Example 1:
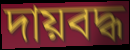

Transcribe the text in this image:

দায়বদ্ধ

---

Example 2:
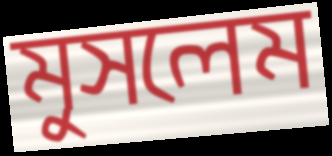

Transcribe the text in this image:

মুসলেম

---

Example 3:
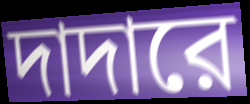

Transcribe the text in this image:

দাদারে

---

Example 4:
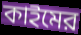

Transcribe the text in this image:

কাইমের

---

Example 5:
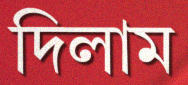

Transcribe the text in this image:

দিলাম